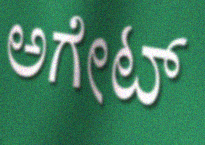
ಅಗೇಟ್